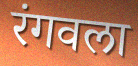
रंगवला